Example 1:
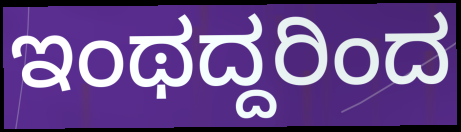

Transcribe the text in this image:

ಇಂಥದ್ದರಿಂದ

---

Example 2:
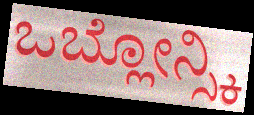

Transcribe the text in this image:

ಒಬ್ಲೋನ್ಸ್ಕಿ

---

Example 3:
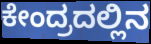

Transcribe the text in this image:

ಕೇಂದ್ರದಲ್ಲಿನ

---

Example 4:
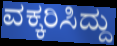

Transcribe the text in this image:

ವಕ್ಕರಿಸಿದ್ದು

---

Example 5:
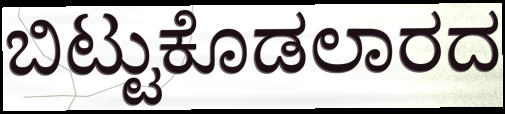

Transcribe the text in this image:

ಬಿಟ್ಟುಕೊಡಲಾರದ